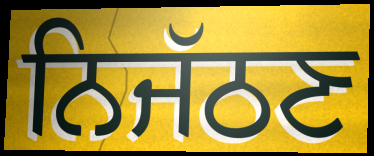
ਨਿਜੱਠਣ